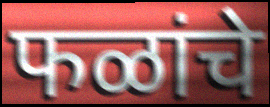
फळांचे